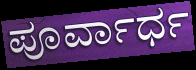
ಪೂರ್ವಾರ್ಧ